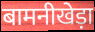
बामनीखेड़ा